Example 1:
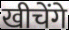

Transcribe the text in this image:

खीचेंगे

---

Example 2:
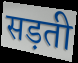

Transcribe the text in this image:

सड़ती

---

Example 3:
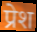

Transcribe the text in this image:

प्रेश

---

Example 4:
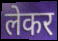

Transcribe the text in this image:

लेकर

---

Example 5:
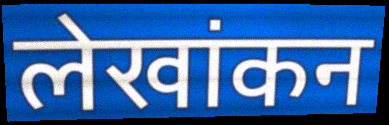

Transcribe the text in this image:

लेखांकन